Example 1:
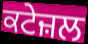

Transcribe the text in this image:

ਕਟੇਜ਼ਲ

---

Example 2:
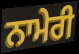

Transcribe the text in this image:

ਨਾਮੇਰੀ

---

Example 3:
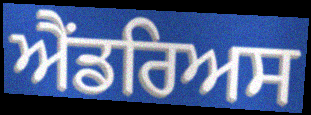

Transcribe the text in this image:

ਐਂਡਰਿਅਸ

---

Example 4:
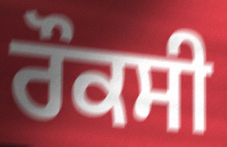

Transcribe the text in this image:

ਰੌਕਸੀ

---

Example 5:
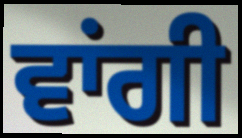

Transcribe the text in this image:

ਵਾਂਗੀ